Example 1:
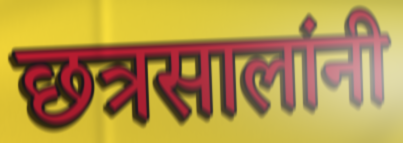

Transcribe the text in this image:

छत्रसालांनी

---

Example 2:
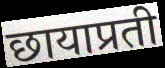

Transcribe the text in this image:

छायाप्रती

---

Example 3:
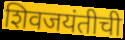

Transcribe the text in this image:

शिवजयंतीची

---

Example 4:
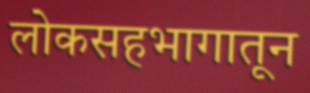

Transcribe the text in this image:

लोकसहभागातून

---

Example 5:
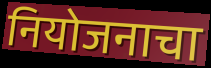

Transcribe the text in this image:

नियोजनाचा